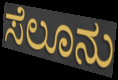
ಸೆಲೂನು